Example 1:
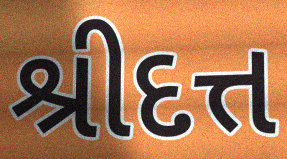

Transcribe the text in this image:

શ્રીદત્ત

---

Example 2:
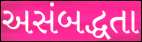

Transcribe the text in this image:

અસંબદ્ધતા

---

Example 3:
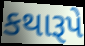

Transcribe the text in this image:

કથારૂપે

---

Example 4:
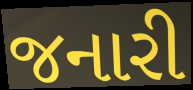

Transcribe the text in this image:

જનારી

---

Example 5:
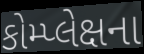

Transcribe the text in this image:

કોમ્પ્લેક્ષના